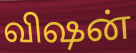
விஷன்